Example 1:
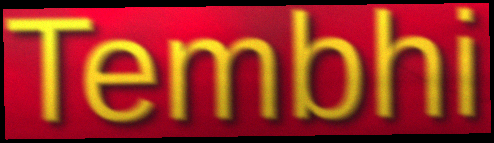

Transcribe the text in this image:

Tembhi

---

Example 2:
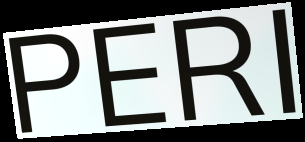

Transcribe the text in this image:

PERI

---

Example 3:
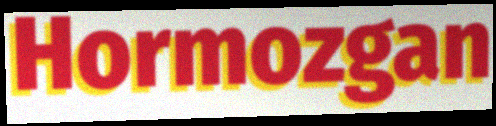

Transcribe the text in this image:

Hormozgan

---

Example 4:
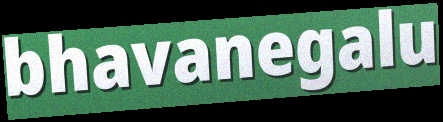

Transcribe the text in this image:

bhavanegalu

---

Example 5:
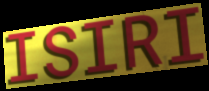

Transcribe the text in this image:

ISIRI